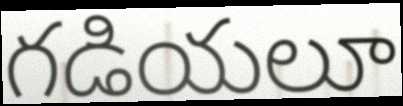
గడియలూ